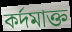
কর্দমাক্ত